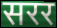
सरर